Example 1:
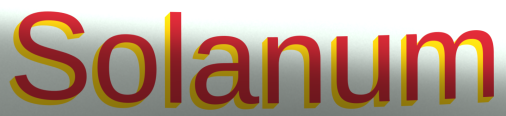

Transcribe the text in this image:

Solanum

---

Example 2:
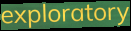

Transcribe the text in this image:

exploratory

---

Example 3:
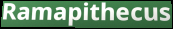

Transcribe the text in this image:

Ramapithecus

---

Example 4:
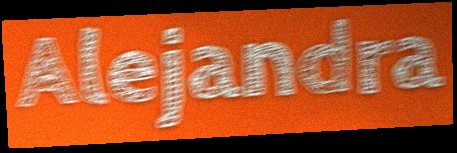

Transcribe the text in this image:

Alejandra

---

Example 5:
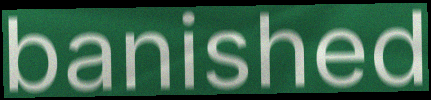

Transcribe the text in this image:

banished